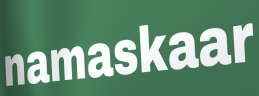
namaskaar